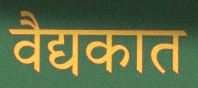
वैद्यकात